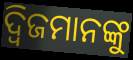
ଦ୍ଵିଜମାନଙ୍କୁ